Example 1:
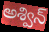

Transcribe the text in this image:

అశ్విన్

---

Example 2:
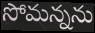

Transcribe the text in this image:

సోమన్నను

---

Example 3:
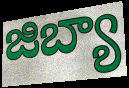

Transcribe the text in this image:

జిబ్యా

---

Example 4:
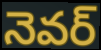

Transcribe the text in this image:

నెవర్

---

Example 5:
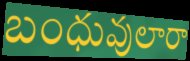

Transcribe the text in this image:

బంధువులారా